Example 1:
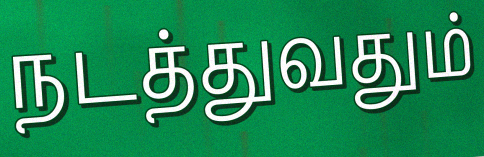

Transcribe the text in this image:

நடத்துவதும்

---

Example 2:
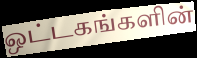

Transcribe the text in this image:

ஒட்டகங்களின்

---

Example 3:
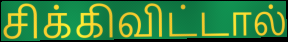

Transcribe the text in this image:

சிக்கிவிட்டால்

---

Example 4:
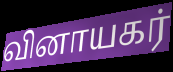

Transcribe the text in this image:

வினாயகர்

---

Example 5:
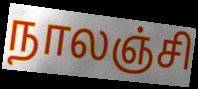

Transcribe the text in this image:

நாலஞ்சி